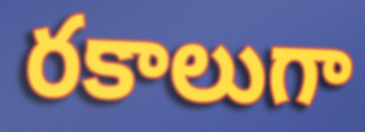
రకాలుగా